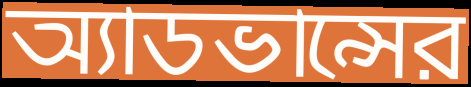
অ্যাডভান্সের